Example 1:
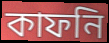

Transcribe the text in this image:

কাফনি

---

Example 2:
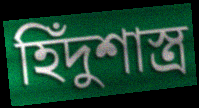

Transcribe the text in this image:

হিঁদুশাস্ত্র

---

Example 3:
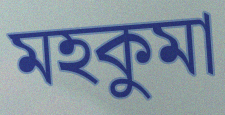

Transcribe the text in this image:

মহকুমা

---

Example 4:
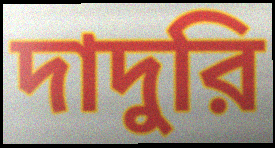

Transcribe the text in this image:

দাদুরি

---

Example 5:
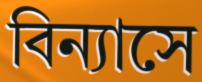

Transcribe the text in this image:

বিন্যাসে